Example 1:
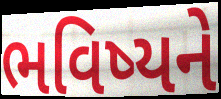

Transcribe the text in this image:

ભવિષ્યને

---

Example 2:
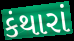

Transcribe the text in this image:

કંથારાં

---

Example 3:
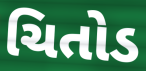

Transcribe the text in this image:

ચિતોડ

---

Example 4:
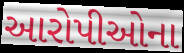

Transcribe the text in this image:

આરોપીઓના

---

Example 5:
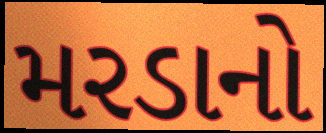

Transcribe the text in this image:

મરડાનો